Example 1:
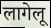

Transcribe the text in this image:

लागेलू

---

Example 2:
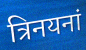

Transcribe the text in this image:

त्रिनयनां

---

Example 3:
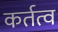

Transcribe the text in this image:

कर्तत्व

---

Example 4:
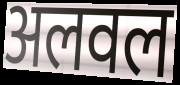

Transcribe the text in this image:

अलवल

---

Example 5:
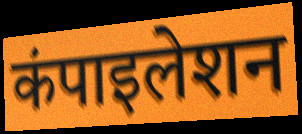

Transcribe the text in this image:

कंपाइलेशन